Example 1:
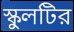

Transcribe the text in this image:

স্কুলটির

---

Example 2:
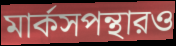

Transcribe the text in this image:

মার্কসপন্থারও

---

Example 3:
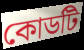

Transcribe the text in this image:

কোডটি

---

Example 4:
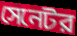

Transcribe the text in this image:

সেনেটর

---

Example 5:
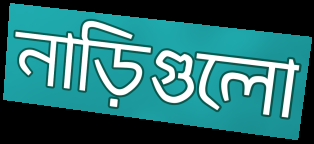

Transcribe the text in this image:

নাড়িগুলো